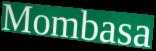
Mombasa